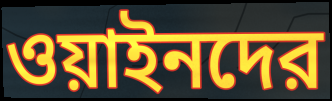
ওয়াইনদের